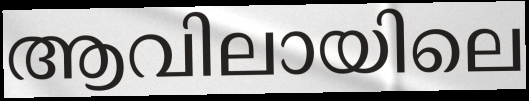
ആവിലായിലെ